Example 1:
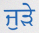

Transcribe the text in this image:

ਜੁੜੇ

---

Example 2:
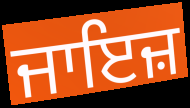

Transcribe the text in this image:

ਜਾਇਜ਼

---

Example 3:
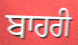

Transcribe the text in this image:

ਬਾਹਰੀ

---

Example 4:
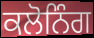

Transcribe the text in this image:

ਕਲੋਨਿੰਗ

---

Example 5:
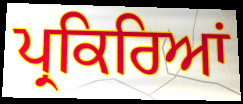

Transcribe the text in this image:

ਪ੍ਰਕਿਰਿਆਂ